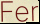
Fer